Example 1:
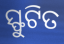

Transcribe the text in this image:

ସ୍ଫୁଟିତ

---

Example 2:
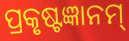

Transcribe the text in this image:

ପ୍ରକୃଷ୍ଟଜ୍ଞାନମ୍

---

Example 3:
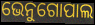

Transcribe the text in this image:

ଭେନୁଗୋପାଲ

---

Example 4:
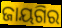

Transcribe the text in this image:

ଜାୟଗିର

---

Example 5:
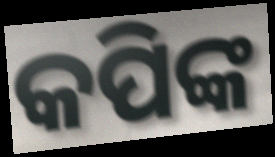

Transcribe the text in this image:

କପିଙ୍କ